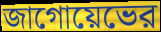
জাগোয়েভের